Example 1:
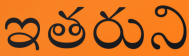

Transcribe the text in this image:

ఇతరుని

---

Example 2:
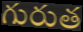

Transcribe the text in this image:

గురుత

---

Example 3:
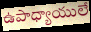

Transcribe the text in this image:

ఉపాధ్యాయులే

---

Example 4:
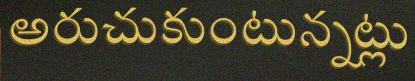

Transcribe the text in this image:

అరుచుకుంటున్నట్లు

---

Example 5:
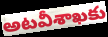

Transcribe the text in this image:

అటవీశాఖకు